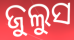
ଜୁଲୁସ